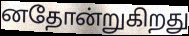
னதோன்றுகிறது